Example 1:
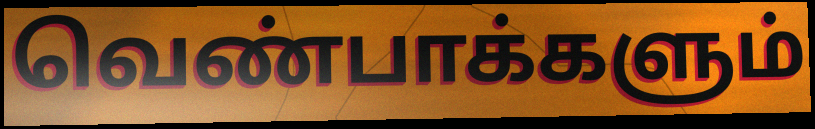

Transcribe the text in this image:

வெண்பாக்களும்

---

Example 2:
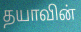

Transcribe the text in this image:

தயாவின்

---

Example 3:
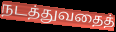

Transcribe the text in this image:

நடத்துவதைத்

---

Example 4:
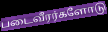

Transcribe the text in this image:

படைவீரர்களோடு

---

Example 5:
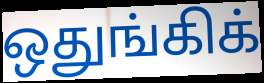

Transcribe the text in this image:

ஒதுங்கிக்